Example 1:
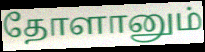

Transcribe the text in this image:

தோளானும்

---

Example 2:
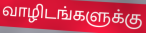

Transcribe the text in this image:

வாழிடங்களுக்கு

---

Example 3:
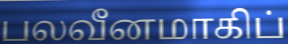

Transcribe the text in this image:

பலவீனமாகிப்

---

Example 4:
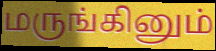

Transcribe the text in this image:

மருங்கினும்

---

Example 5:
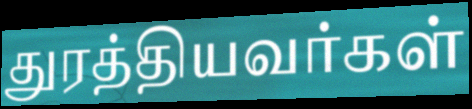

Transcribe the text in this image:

துரத்தியவர்கள்